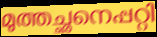
മുത്തച്ഛനെപ്പറ്റി